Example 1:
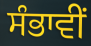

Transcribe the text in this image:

ਸੰਭਾਵੀਂ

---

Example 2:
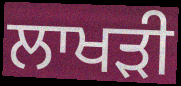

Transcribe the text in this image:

ਲਾਖੜੀ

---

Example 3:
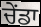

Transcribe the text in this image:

ਚੇਂਡਾ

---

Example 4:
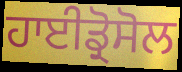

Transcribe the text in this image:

ਹਾਈਡ੍ਰੋਸੋਲ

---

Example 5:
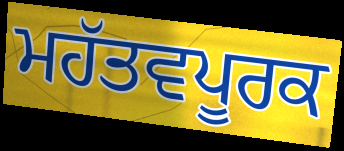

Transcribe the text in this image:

ਮਹੱਤਵਪੂਰਕ